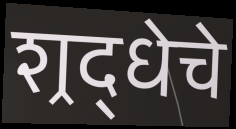
श्रद्धेचे